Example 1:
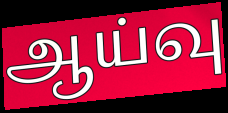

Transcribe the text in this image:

ஆய்வு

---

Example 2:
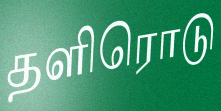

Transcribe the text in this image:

தளிரொடு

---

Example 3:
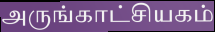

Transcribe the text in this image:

அருங்காட்சியகம்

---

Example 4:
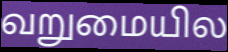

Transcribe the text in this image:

வறுமையில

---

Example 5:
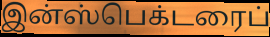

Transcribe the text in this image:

இன்ஸ்பெக்டரைப்